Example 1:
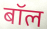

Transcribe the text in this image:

बॉल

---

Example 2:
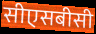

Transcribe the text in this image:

सीएसबीसी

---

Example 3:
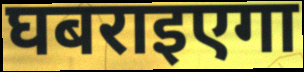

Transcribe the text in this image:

घबराइएगा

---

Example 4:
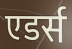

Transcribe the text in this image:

एडर्स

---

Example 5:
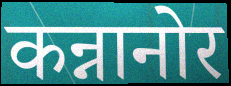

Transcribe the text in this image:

कन्नानोर